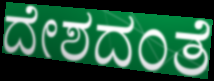
ದೇಶದಂತೆ